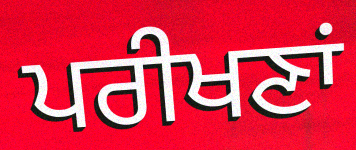
ਪਰੀਖਣਾਂ